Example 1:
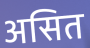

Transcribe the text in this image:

असित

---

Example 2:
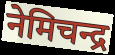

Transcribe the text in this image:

नेमिचन्द्र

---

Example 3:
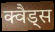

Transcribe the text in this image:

क्वैड्स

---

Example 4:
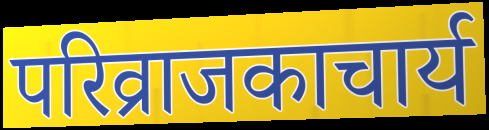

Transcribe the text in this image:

परिव्राजकाचार्य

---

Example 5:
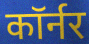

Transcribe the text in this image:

कॉर्नर